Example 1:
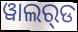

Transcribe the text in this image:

ୱାଲର୍‌ଡ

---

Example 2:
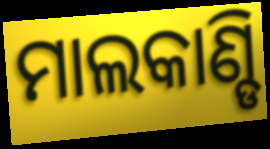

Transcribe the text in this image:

ମାଲକାଣ୍ଡି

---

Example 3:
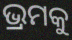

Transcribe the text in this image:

ଭ୍ରମକୁ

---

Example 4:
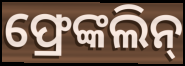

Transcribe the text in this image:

ଫ୍ରେଙ୍କଲିନ୍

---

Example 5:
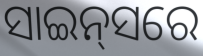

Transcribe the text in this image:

ସାଇନ୍‌ସରେ